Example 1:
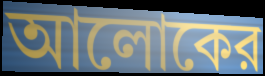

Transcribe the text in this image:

আলোকের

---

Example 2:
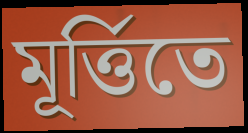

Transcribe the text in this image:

মূর্ত্তিতে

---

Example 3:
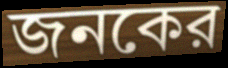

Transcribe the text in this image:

জনকের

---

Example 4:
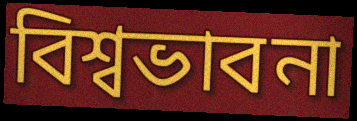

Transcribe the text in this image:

বিশ্বভাবনা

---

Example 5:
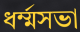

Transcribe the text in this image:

ধর্ম্মসভা